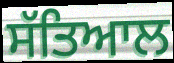
ਸੱਤਿਆਲ